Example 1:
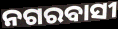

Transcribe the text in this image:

ନଗରବାସୀ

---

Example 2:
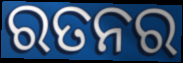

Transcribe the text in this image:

ରତନର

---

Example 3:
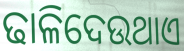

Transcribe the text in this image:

ଢାଳିଦେଉଥାଏ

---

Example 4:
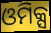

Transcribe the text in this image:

ଓମିକ୍ସ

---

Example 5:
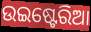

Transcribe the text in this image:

ଉଇଷ୍ଟେରିଆ